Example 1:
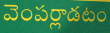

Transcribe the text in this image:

వెంపర్లాడటం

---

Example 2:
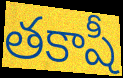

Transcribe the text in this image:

తకాషీ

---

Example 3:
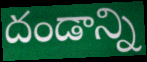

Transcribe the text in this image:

దండాన్ని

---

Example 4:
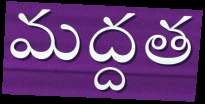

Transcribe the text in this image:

మద్దత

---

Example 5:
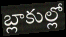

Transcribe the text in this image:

బ్లాకుల్లో